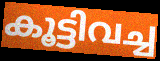
കൂട്ടിവച്ച